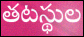
తటస్థుల